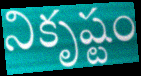
నికృష్టం